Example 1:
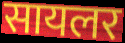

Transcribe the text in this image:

सायलर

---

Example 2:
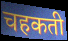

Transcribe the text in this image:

चहकती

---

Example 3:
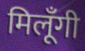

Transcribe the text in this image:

मिलूँगी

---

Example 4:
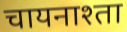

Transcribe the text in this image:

चायनाश्ता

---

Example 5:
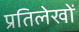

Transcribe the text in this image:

प्रतिलेखों